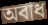
অবাধ